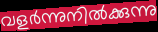
വളർന്നുനിൽക്കുന്നു